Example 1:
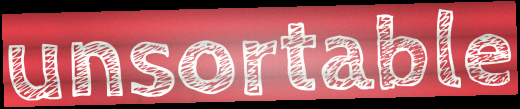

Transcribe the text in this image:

unsortable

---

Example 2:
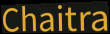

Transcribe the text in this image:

Chaitra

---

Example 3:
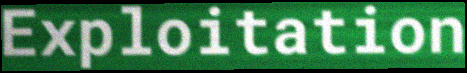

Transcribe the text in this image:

Exploitation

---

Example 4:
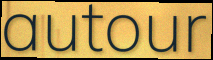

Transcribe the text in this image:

autour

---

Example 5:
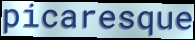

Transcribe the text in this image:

picaresque